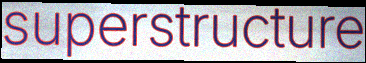
superstructure